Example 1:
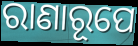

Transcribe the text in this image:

ରାଣାରୂପେ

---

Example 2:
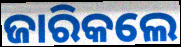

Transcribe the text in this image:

ଜାରିକଲେ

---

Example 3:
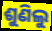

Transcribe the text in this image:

ଶୁଣିଲୁ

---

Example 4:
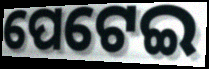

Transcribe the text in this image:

ପେଟେଇ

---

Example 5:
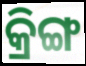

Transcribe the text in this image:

କ୍ରିଙ୍ଗ